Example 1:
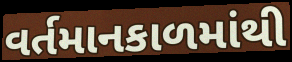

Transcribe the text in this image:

વર્તમાનકાળમાંથી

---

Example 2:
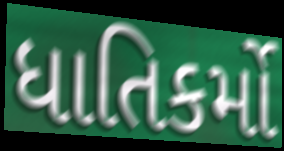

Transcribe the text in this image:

ધાતિકર્મો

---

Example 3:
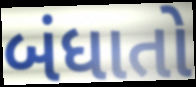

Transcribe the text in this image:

બંધાતો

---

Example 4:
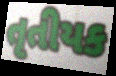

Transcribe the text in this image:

તૃતીયક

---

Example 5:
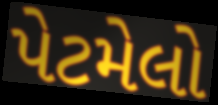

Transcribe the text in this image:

પેટમેલો